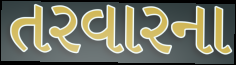
તરવારના